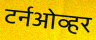
टर्नओव्हर